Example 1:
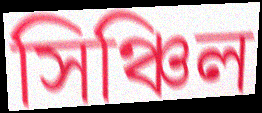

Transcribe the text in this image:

সিঞ্চিল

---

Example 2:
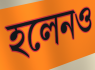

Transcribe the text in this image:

হলেনও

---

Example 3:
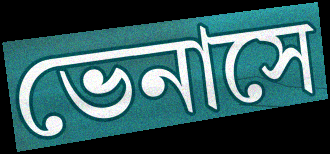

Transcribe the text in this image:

ভেনাসে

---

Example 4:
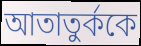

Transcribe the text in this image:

আতাতুর্ককে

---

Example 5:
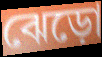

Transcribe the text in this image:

ঝেড়ো